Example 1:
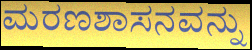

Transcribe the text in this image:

ಮರಣಶಾಸನವನ್ನು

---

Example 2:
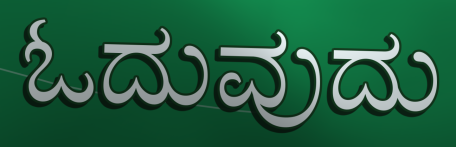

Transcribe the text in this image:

ಓದುವುದು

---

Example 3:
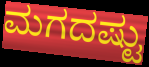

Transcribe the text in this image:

ಮಗದಷ್ಟು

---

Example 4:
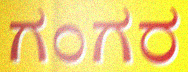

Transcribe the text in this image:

ಗಂಗರ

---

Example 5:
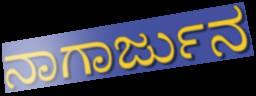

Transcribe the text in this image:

ನಾಗಾರ್ಜುನ